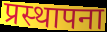
प्रस्थापना